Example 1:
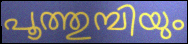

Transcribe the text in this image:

പൂത്തുമ്പിയും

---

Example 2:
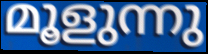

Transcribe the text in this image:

മൂളുന്നു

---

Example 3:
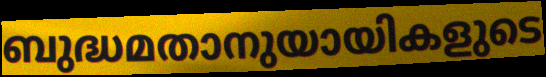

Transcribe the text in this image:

ബുദ്ധമതാനുയായികളുടെ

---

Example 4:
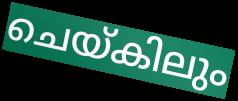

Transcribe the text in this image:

ചെയ്കിലും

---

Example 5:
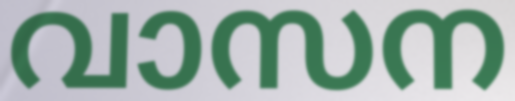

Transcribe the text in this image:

വാസന